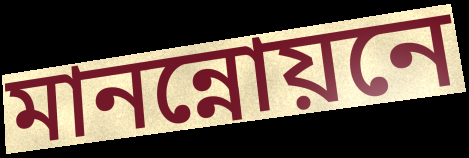
মানন্নোয়নে